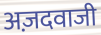
अज़दवाजी